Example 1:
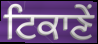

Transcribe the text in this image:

ਟਿਕਾਣੇਂ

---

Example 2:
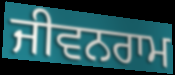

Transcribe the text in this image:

ਜੀਵਨਰਾਮ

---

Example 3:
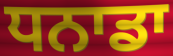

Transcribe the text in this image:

ਧਨਾਡਾ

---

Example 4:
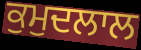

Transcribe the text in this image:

ਕੁਮੁਦਲਾਲ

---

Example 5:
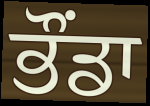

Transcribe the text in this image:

ਭੌਂਡਾ